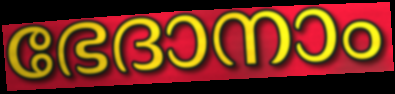
ഭേദാനാം